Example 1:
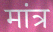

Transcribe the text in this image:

मांत्र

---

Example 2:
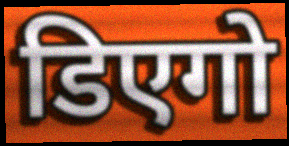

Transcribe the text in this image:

डिएगो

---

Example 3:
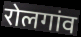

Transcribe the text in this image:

रोलगांव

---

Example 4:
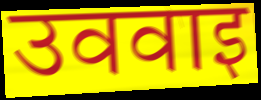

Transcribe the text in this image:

उववाइ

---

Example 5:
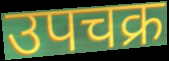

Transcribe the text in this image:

उपचक्र